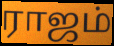
ராஜம்